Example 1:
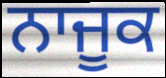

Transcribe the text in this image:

ਨਾਜੂਕ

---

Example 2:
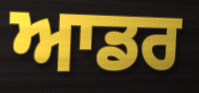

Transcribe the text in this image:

ਆਡਰ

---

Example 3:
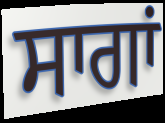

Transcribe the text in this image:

ਸਾਗਾਂ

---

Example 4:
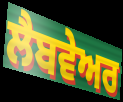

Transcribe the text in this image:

ਲੈਬਵੇਅਰ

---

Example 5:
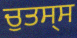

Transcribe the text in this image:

ਚੁਤਸ੍ਸ